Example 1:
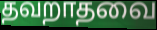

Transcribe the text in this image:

தவறாதவை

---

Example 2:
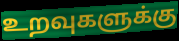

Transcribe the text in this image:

உறவுகளுக்கு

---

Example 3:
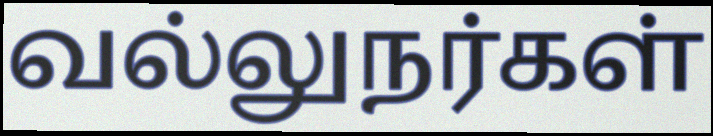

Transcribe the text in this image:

வல்லுநர்கள்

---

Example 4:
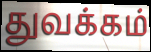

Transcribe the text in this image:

துவக்கம்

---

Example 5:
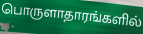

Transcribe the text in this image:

பொருளாதாரங்களில்